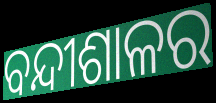
ବନ୍ଦୀଶାଳର